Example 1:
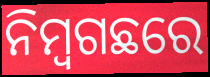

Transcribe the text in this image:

ନିମ୍ବଗଛରେ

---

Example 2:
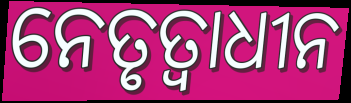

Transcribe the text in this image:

ନେତୃତ୍ୱାଧୀନ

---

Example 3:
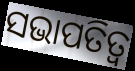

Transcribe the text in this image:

ସଭାପତିତ୍ବ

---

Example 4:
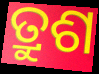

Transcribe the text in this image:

ତ୍ରୁଶ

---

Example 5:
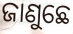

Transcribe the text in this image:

ଜାଣୁଛେ